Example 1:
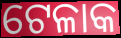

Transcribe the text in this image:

ଟେଳାକ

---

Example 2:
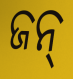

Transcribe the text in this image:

ଜନ୍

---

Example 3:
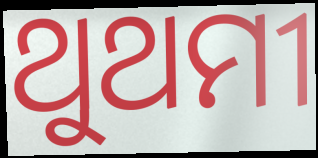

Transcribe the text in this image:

ଥୁଥମୀ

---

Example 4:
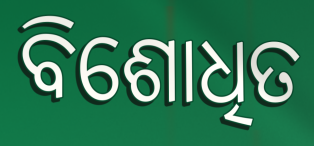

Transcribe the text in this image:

ବିଶୋଧିତ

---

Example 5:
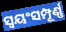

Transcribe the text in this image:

ସ୍ୱୟଂସମ୍ପୂର୍ଣ୍ଣ